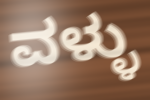
ವಳ್ಳು